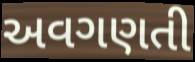
અવગણતી